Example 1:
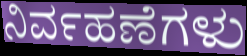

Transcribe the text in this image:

ನಿರ್ವಹಣೆಗಳು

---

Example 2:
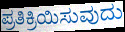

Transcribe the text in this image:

ಪ್ರತಿಕ್ರಿಯಿಸುವುದು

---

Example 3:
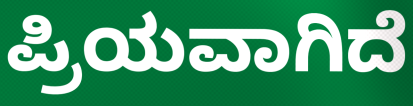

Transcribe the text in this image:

ಪ್ರಿಯವಾಗಿದೆ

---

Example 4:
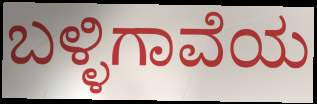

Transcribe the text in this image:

ಬಳ್ಳಿಗಾವೆಯ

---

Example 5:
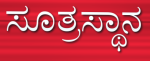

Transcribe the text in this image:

ಸೂತ್ರಸ್ಥಾನ